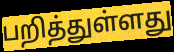
பறித்துள்ளது